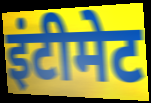
इंटीमेट